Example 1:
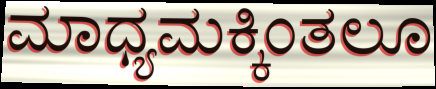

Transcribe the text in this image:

ಮಾಧ್ಯಮಕ್ಕಿಂತಲೂ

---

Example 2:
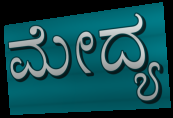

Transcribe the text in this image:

ಮೇದ್ಯ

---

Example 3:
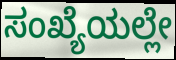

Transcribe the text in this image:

ಸಂಖ್ಯೆಯಲ್ಲೇ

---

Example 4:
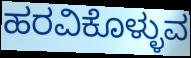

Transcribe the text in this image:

ಹರವಿಕೊಳ್ಳುವ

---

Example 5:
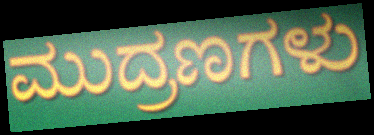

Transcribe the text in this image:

ಮುದ್ರಣಗಳು